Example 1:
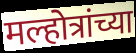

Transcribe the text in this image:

मल्होत्रांच्या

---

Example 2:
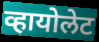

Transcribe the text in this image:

व्हायोलेट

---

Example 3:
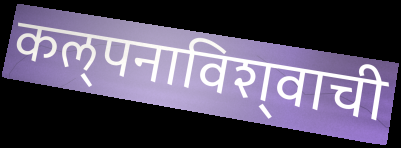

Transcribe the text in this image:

कल्पनाविश्वाची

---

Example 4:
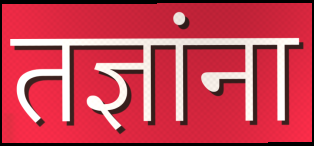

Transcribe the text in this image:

तज्ञांना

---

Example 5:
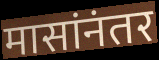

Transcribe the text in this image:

मासांनंतर